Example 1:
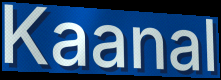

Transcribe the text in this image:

Kaanal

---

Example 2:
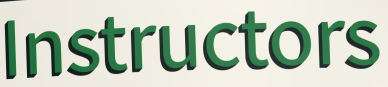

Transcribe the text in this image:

Instructors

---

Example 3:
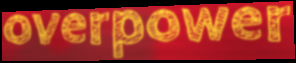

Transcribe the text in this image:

overpower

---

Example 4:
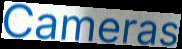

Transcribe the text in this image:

Cameras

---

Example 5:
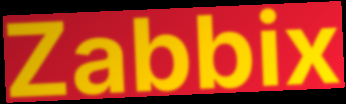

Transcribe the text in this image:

Zabbix